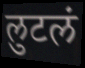
लुटलं